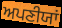
ਅਪਣੀਯਾਂ